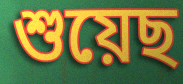
শুয়েছ